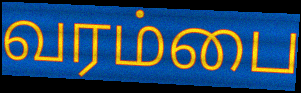
வரம்பை